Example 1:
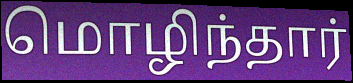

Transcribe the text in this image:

மொழிந்தார்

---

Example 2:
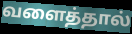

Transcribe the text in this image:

வளைத்தால்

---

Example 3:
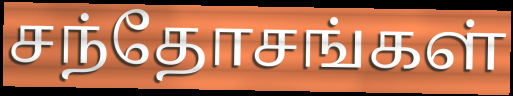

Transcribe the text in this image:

சந்தோசங்கள்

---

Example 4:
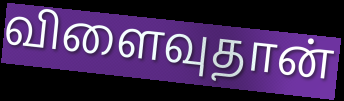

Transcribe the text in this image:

விளைவுதான்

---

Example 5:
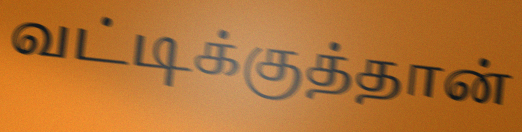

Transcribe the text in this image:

வட்டிக்குத்தான்